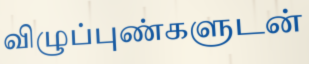
விழுப்புண்களுடன்